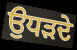
ਉਧੜਦੇ